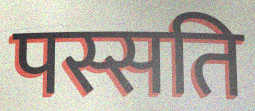
पस्सति